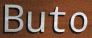
Buto